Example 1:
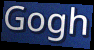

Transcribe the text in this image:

Gogh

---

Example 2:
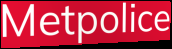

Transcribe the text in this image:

Metpolice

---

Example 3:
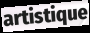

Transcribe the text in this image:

artistique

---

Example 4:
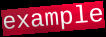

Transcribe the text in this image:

example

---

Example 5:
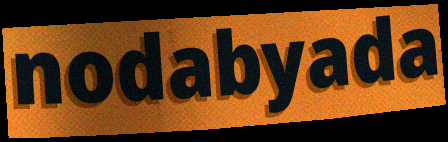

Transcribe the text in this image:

nodabyada